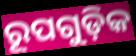
ରୂପଗୁଡ଼ିକ